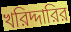
খরিদ্দারির